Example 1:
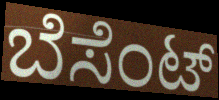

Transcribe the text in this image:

ಬೆಸೆಂಟ್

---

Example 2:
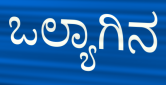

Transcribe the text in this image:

ಒಲ್ಯಾಗಿನ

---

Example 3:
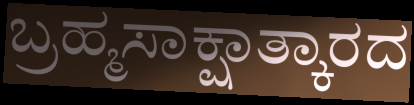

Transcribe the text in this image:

ಬ್ರಹ್ಮಸಾಕ್ಷಾತ್ಕಾರದ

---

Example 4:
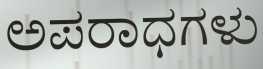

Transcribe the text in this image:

ಅಪರಾಧಗಳು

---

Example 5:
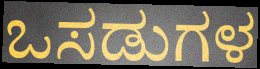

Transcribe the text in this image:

ಒಸಡುಗಳ